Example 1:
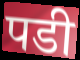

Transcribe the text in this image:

पडी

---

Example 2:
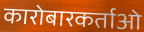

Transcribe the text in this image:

कारोबारकर्ताओ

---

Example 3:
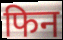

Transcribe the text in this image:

फिन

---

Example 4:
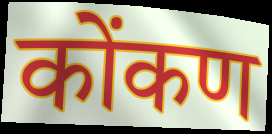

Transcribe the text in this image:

कोंकण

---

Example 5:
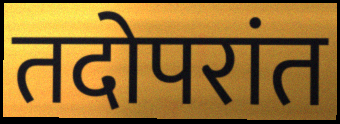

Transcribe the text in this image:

तदोपरांत